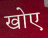
खोए